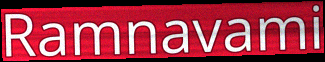
Ramnavami